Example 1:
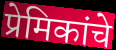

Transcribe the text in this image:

प्रेमिकांचे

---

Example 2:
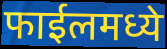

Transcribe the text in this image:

फाईलमध्ये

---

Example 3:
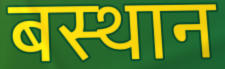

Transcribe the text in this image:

बस्थान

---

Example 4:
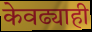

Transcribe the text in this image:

केवढ्याही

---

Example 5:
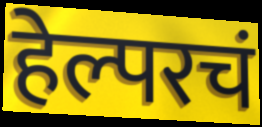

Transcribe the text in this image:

हेल्परचं